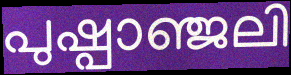
പുഷ്പാഞ്ജലി